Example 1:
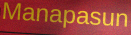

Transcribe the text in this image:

Manapasun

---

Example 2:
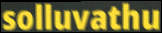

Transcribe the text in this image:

solluvathu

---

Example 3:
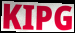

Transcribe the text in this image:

KIPG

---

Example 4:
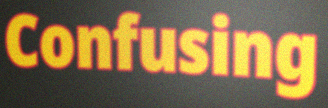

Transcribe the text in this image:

Confusing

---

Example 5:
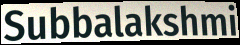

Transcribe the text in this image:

Subbalakshmi